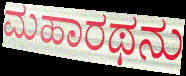
ಮಹಾರಥನು